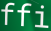
ffi